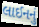
લાઈનનું